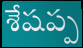
శేషప్ప